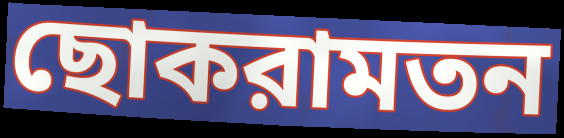
ছোকরামতন